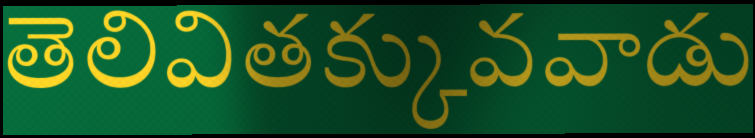
తెలివితక్కువవాడు